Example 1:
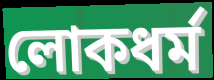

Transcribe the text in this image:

লোকধর্ম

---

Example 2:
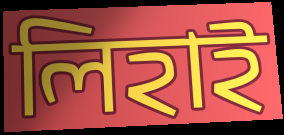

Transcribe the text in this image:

লিহাই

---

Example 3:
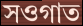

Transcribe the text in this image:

সওগাত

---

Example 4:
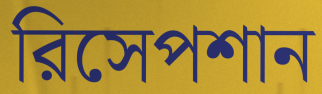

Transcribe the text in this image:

রিসেপশান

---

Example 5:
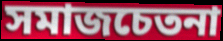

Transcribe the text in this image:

সমাজচেতনা